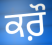
ਕਰ਼ੌ